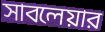
সাবলেয়ার